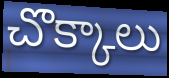
చొక్కాలు